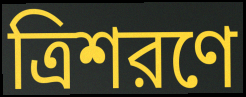
ত্রিশরণে